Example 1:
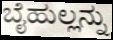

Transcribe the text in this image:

ಬೈಹುಲ್ಲನ್ನು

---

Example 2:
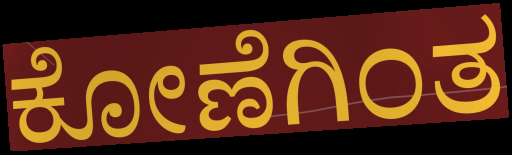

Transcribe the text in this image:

ಕೋಣೆಗಿಂತ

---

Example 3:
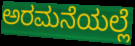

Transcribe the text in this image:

ಅರಮನೆಯಲ್ಲೆ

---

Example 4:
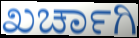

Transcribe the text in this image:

ಖರ್ಚಾಗಿ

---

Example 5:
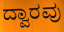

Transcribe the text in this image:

ದ್ವಾರವು